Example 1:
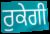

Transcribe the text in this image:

ਰੁਕੇਗੀ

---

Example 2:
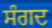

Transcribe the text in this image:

ਸੰਗਦ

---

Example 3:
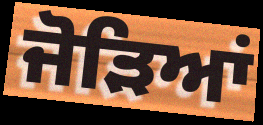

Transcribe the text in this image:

ਜੋੜਿਆਂ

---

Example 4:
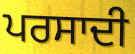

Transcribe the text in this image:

ਪਰਸਾਦੀ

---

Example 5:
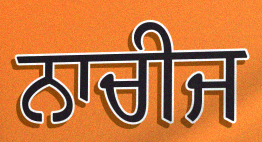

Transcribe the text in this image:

ਨਾਚੀਜ